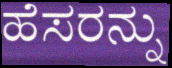
ಹೆಸರನ್ನು